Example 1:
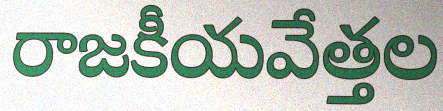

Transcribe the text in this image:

రాజకీయవేత్తల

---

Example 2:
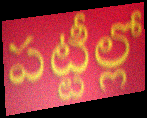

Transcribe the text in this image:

పట్టీల్లో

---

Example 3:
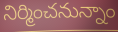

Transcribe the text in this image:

నిర్మించనున్నాం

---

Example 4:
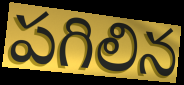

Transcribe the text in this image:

పగిలిన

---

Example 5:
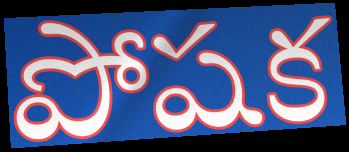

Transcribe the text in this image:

పోషక